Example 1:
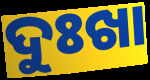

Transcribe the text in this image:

ଦୁଃଖା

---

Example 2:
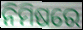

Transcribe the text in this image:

ନିମିଷରେ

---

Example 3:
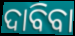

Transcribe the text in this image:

ଦାବିବା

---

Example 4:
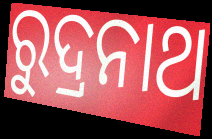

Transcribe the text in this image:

ରୁଦ୍ରନାଥ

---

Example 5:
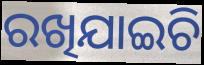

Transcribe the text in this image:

ରଖିଯାଇଚି